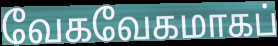
வேகவேகமாகப்